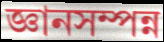
জ্ঞানসম্পন্ন